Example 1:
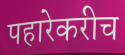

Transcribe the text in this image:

पहारेकरीच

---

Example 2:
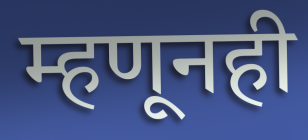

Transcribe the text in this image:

म्हणूनही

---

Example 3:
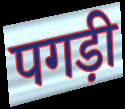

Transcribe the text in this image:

पगड़ी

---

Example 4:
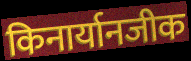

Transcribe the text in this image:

किनार्यानजीक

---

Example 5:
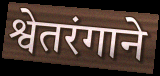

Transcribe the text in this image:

श्वेतरंगाने